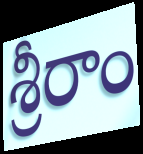
శ్రీరాం